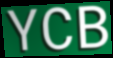
YCB